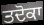
ਤਦੋਕਾ